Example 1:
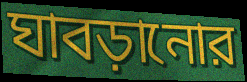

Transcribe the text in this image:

ঘাবড়ানোর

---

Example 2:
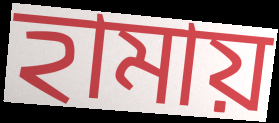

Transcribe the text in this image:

হামায়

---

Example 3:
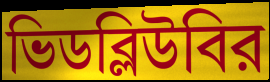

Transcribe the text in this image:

ভিডব্লিউবির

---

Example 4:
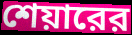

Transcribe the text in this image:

শেয়ারের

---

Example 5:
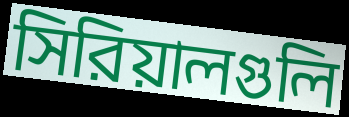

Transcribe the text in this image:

সিরিয়ালগুলি